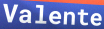
Valente